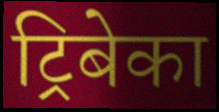
ट्रिबेका